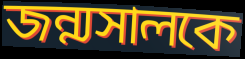
জন্মসালকে